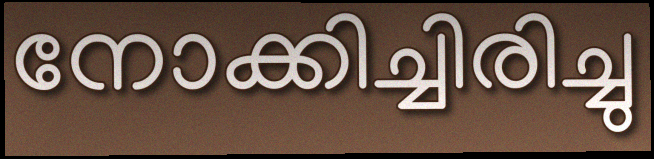
നോക്കിച്ചിരിച്ചു